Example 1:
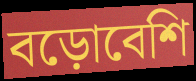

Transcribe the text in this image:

বড়োবেশি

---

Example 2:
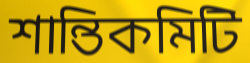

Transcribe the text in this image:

শান্তিকমিটি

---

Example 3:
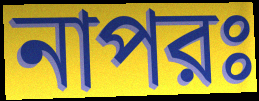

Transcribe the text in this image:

নাপরঃ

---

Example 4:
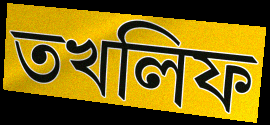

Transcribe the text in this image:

তখলিফ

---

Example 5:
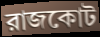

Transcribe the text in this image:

রাজকোট